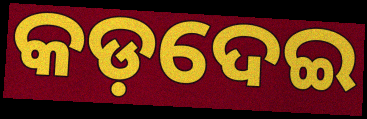
କଡ଼ଦେଇ